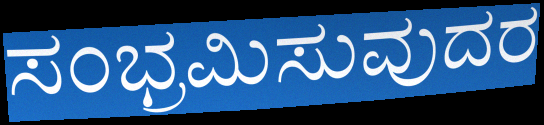
ಸಂಭ್ರಮಿಸುವುದರ